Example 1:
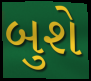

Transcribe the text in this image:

બુશે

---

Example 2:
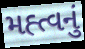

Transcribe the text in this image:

મહ્ત્વનું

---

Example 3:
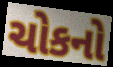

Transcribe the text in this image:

ચોકનો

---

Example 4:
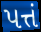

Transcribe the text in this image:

પત્તં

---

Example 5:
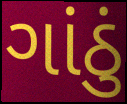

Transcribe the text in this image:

ગાંઠું